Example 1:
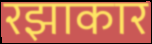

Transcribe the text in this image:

रझाकार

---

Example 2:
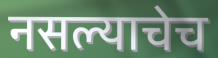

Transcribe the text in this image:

नसल्याचेच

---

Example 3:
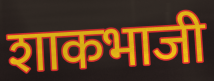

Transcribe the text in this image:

शाकभाजी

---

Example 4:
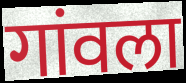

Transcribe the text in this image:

गांवला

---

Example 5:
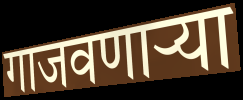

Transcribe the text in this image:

गाजवणाऱ्या